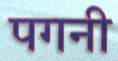
पगनी